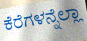
ಕೆರೆಗಳನ್ನೆಲ್ಲಾ